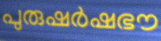
പുരുഷർഷഭൗ